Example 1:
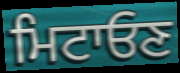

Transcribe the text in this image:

ਮਿਟਾਓਣ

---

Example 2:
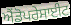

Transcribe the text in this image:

ਐਂਡੋਪਰੇਸਾਈਟ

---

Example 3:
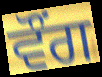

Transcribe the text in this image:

ਵੌਂਗ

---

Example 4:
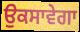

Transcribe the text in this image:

ਉਕਸਾਵੇਗਾ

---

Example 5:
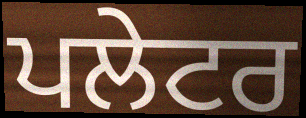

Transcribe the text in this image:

ਪਲੇਟਰ